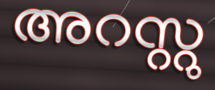
അറസ്റ്റു